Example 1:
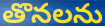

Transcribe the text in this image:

తొనలను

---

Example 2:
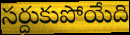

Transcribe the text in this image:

సర్దుకుపోయేది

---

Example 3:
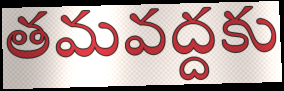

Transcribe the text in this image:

తమవద్దకు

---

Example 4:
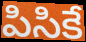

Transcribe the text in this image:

పిసికే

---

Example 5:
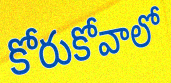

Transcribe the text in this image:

కోరుకోవాలో